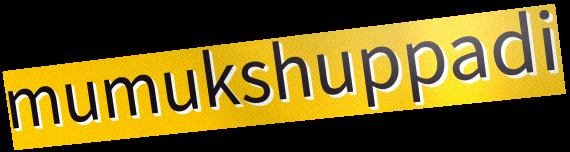
mumukshuppadi